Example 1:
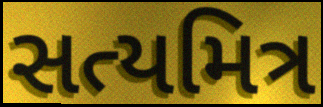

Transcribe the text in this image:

સત્યમિત્ર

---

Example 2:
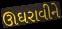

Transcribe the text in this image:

ઊઘરાવીને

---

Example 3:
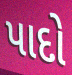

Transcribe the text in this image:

પાદો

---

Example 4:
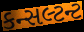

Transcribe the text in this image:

કન્સલ્ટન્ટ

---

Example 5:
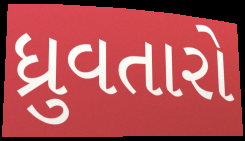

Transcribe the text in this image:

ધ્રુવતારો